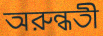
অৰুন্ধতী